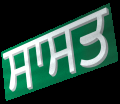
ਸਾਸਤ